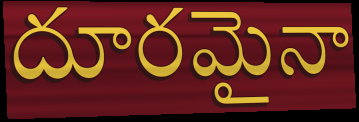
దూరమైనా